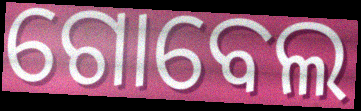
ଗୋବେଲ